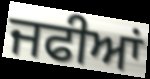
ਜਫੀਆਂ